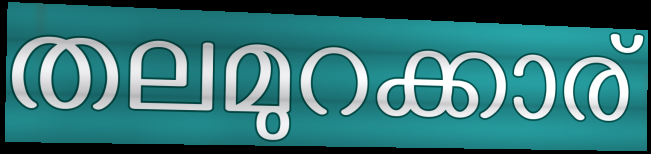
തലമുറക്കാര്